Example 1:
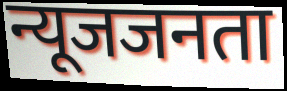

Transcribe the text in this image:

न्यूजजनता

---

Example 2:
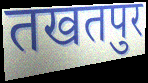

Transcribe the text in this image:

तखतपुर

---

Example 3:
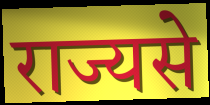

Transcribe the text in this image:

राज्यसे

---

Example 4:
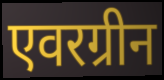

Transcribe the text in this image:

एवरग्रीन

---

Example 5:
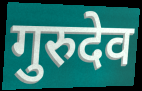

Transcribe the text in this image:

गुरुदेव